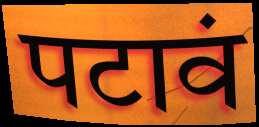
पटावं